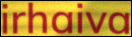
irhaiva